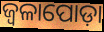
ଜ୍ୱଳାପୋଡ଼ା